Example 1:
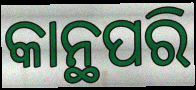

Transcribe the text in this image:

କାନ୍ଥପରି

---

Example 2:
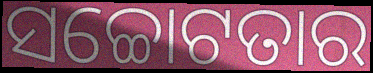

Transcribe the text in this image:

ସଚ୍ଚୋଟତାର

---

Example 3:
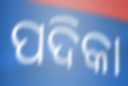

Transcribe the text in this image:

ପଦିକା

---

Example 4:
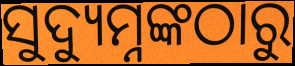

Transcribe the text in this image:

ସୁଦ୍ୟୁମ୍ନଙ୍କଠାରୁ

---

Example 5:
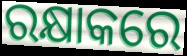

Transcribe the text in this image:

ରକ୍ଷାକରେ